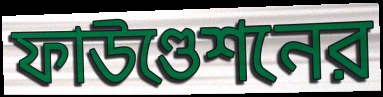
ফাউণ্ডেশনের